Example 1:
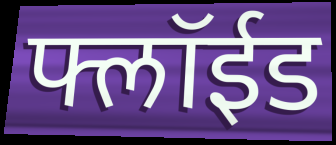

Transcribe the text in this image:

फ्लॉईड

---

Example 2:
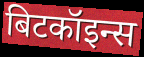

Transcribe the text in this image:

बिटकॉइन्स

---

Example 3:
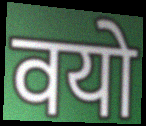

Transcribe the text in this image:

वयो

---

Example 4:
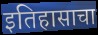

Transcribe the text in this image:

इतिहासाचा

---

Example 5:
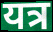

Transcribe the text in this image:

यत्र